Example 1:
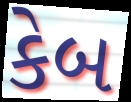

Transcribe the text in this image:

કેબ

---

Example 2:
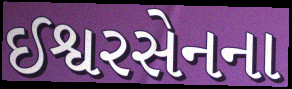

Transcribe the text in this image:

ઈશ્વરસેનના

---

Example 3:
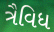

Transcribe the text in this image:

ત્રૈવિધ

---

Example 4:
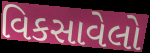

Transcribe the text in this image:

વિકસાવેલો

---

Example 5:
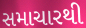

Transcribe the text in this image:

સમાચારથી